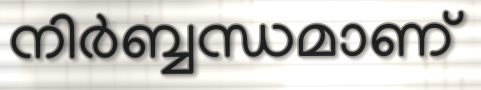
നിർബ്ബന്ധമാണ്